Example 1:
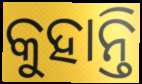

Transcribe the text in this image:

କୁହାନ୍ତି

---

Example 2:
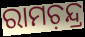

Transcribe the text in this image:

ରାମଚ଼ନ୍ଦ୍ର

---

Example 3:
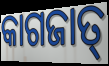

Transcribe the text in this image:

କାଗଜାତ୍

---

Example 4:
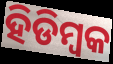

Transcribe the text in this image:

ହିଡିମ୍ବକ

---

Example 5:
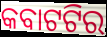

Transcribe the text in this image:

କବାଟଟିର